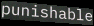
punishable